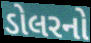
ડોલરનો